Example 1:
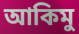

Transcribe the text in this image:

আকিমু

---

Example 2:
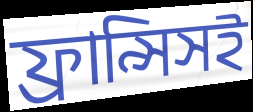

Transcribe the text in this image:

ফ্রান্সিসই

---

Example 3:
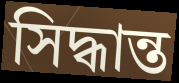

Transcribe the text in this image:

সিদ্ধান্ত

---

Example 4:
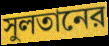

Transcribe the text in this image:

সুলতানের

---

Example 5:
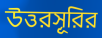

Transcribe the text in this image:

উত্তরসূরির